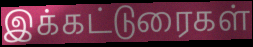
இக்கட்டுரைகள்